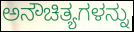
ಅನೌಚಿತ್ಯಗಳನ್ನು